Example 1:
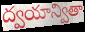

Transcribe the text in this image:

ద్వయాన్వితా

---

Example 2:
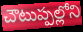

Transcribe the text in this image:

చౌటుప్పల్లోని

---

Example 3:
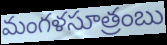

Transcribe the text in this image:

మంగళసూత్రంబు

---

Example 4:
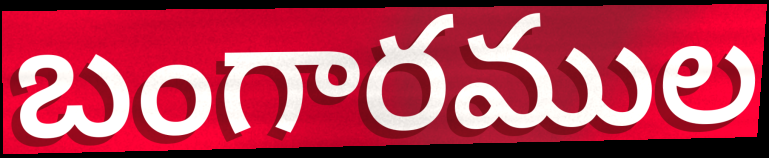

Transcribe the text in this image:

బంగారముల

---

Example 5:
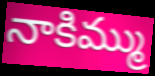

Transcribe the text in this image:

నాకిమ్ము